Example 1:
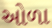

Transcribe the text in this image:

ઓળા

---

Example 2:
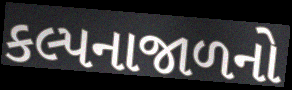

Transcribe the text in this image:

કલ્પનાજાળનો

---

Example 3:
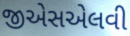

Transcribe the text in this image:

જીએસએલવી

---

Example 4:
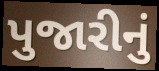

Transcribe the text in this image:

પુજારીનું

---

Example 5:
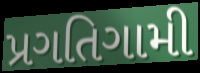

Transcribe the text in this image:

પ્રગતિગામી